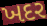
ખદર